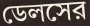
ডেলসের